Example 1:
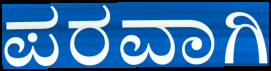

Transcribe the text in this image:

ಪರವಾಗಿ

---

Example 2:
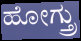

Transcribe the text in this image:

ಹೋಗ್ತ್ರು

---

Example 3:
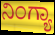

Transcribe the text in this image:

ನಿಂಗ್ಯಾ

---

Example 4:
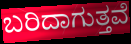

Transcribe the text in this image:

ಬರಿದಾಗುತ್ತವೆ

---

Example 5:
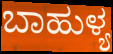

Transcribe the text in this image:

ಬಾಹುಳ್ಯ